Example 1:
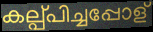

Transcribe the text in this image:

കല്പ്പിച്ചപ്പോള്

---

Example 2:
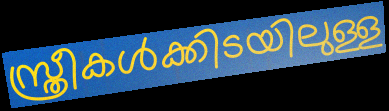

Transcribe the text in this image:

സ്ത്രീകൾക്കിടയിലുള്ള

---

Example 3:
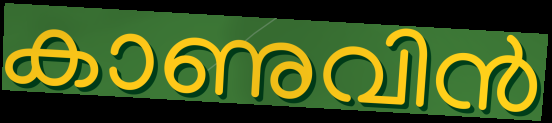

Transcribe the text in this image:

കാണുവിൻ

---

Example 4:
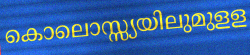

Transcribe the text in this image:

കൊലൊസ്സ്യയിലുമുളള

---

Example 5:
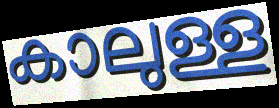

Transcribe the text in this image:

കാലുള്ള